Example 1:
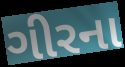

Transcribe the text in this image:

ગીરના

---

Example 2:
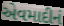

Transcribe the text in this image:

એવમાદીનં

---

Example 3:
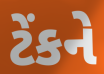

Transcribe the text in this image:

ટેંકને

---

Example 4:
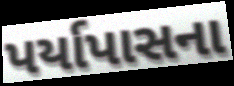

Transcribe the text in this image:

પર્યાપાસના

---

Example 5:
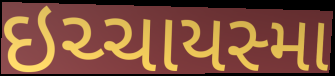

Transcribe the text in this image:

ઇચ્ચાયસ્મા